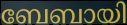
ബേബായി